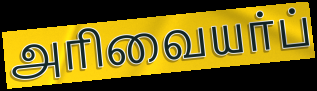
அரிவையர்ப்